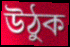
উঠুক